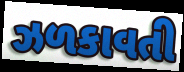
ઝળકાવતી